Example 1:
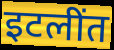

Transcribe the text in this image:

इटलींत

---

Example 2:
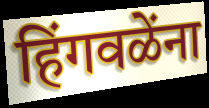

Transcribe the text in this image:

हिंगवळेंना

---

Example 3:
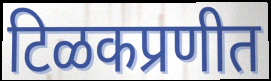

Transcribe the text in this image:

टिळकप्रणीत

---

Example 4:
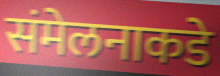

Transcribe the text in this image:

संमेलनाकडे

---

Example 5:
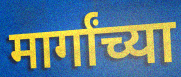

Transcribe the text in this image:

मार्गांच्या